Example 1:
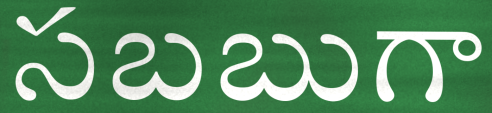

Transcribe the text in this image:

సబబుగా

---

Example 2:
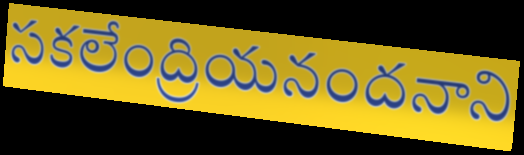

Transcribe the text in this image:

సకలేంద్రియనందనాని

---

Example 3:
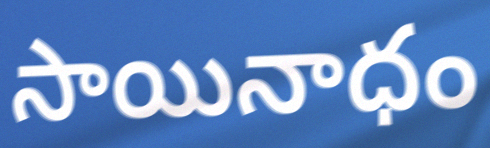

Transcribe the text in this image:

సాయినాధం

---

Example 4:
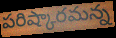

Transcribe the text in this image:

పరిష్కారమన్న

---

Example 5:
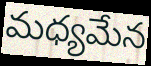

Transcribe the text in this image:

మధ్యమేన